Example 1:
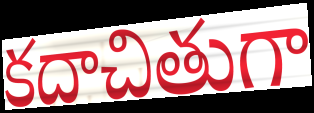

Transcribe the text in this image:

కదాచితుగా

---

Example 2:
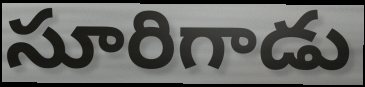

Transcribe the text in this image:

సూరిగాడు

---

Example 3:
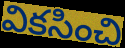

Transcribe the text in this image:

వికసించి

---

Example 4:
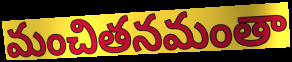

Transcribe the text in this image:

మంచితనమంతా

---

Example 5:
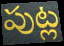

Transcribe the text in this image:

పుట్ల